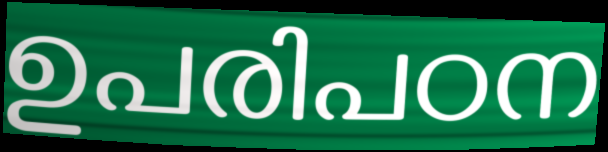
ഉപരിപഠന